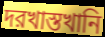
দরখাস্তখানি